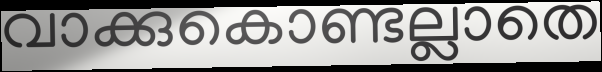
വാക്കുകൊണ്ടല്ലാതെ